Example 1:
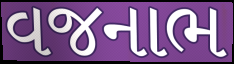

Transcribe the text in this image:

વજનાભ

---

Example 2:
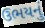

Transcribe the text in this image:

ઉભયનું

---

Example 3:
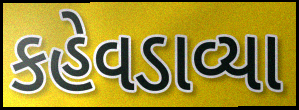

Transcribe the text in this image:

કહેવડાવ્યા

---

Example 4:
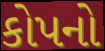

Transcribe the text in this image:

કોપનો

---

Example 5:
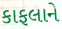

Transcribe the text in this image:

કાફલાને